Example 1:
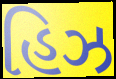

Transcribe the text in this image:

હિઝ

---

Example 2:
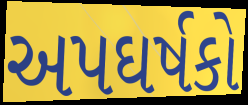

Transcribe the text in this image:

અપઘર્ષકો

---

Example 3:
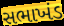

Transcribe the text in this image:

સભાખંડ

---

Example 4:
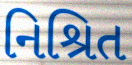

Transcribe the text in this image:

નિશ્રિત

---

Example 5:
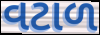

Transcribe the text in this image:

વટાળ